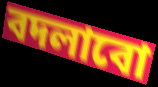
বদলাবো